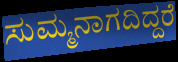
ಸುಮ್ಮನಾಗದಿದ್ದರೆ